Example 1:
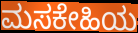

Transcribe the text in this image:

ಮಸಕೇಹಿಯ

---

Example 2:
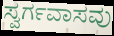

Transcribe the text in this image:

ಸ್ವರ್ಗವಾಸವು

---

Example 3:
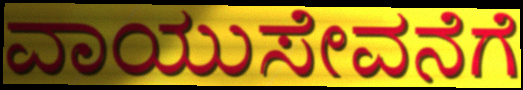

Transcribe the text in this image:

ವಾಯುಸೇವನೆಗೆ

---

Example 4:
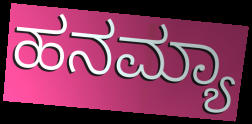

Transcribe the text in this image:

ಹನಮ್ಯಾ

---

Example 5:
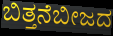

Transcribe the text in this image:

ಬಿತ್ತನೆಬೀಜದ